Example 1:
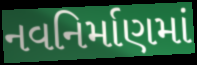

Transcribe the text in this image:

નવનિર્માણમાં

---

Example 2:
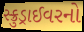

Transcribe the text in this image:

સ્ક્રુડ્રાઈવરનો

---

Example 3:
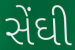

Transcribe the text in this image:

સેંઘી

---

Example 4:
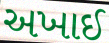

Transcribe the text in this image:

અખાઈ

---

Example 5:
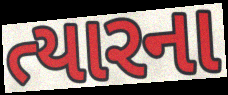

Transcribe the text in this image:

ત્યારના